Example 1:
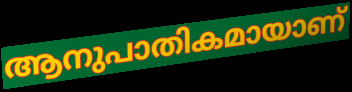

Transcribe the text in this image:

ആനുപാതികമായാണ്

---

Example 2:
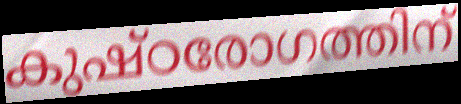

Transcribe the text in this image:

കുഷ്ഠരോഗത്തിന്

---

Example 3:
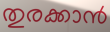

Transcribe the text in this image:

തുരക്കാൻ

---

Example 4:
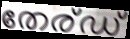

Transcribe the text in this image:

തേര്ഡ്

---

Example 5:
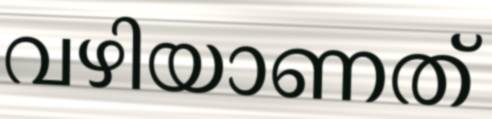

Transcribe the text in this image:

വഴിയാണത്